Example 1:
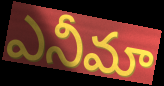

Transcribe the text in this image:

ఎనీమా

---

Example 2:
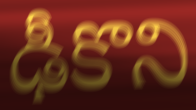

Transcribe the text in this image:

ఢీకొని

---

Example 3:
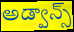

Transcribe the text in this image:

అడ్వాన్స్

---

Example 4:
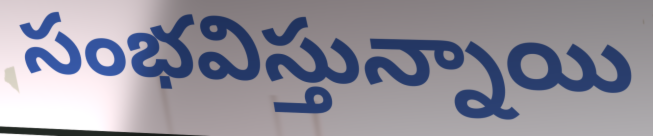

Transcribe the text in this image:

సంభవిస్తున్నాయి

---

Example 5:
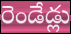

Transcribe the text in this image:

రెండేడ్లు